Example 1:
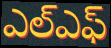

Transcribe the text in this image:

ఎల్ఎఫ్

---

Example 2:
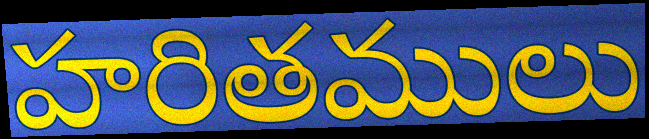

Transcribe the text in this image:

హరితములు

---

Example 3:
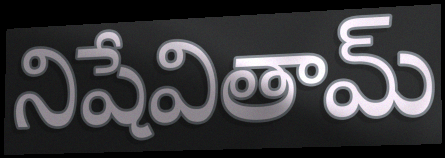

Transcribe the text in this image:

నిషేవితామ్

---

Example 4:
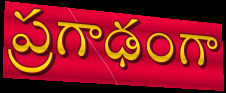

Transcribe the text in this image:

ప్రగాఢంగా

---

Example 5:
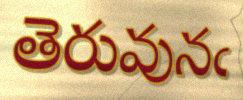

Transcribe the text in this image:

తెరువునఁ